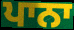
ਪਾਨਾ